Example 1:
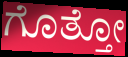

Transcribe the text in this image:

ಗೊತ್ತೋ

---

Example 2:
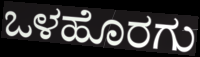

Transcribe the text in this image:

ಒಳಹೊರಗು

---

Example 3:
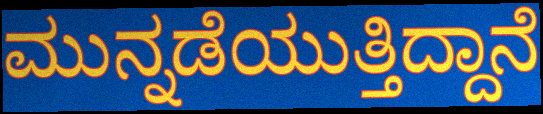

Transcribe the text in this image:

ಮುನ್ನಡೆಯುತ್ತಿದ್ದಾನೆ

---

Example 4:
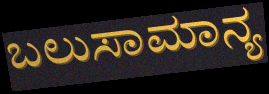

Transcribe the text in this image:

ಬಲುಸಾಮಾನ್ಯ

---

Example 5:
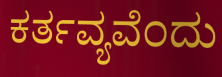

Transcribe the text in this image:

ಕರ್ತವ್ಯವೆಂದು